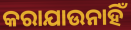
କରାଯାଉନାହିଁ